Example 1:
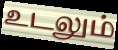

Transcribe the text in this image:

உடலும்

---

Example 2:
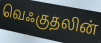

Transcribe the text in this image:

வெஃகுதலின்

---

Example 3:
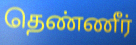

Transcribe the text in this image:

தெண்ணீர்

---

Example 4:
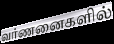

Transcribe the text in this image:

வர்ணனைகளில்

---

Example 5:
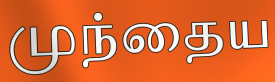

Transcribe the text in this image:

முந்தைய